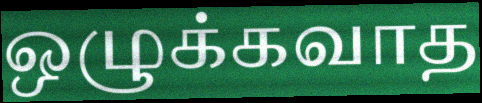
ஒழுக்கவாத